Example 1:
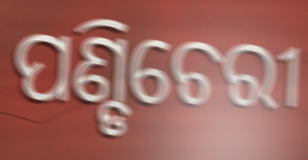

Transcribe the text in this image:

ପଣ୍ଡିଚେରୀ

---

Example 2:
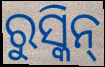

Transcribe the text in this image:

ରୁସ୍କିନ୍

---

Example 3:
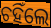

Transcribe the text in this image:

ଚହିଁଲେ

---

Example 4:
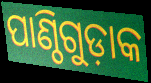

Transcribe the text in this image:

ପାଣ୍ଠିଗୁଡ଼ାକ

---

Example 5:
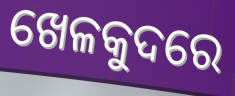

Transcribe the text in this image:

ଖେଳକୁଦରେ